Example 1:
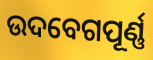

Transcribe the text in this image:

ଉଦବେଗପୂର୍ଣ୍ଣ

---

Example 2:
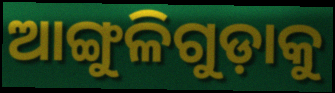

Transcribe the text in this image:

ଆଙ୍ଗୁଳିଗୁଡ଼ାକୁ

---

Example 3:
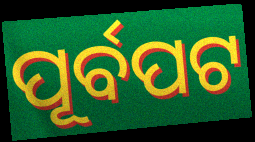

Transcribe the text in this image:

ପୂର୍ବପଟ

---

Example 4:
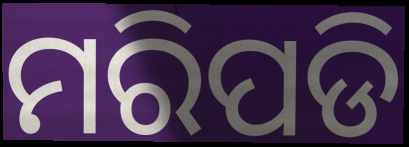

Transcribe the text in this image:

ମରିପଡି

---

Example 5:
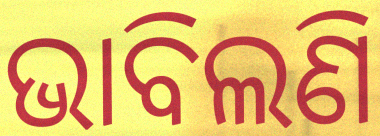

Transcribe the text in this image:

ଭାବିଲଣି